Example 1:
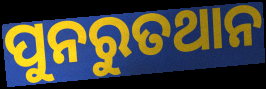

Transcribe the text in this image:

ପୁନରୁତଥାନ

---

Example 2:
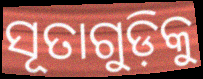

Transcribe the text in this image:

ସୂତାଗୁଡ଼ିକୁ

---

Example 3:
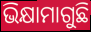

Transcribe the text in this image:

ଭିକ୍ଷାମାଗୁଛି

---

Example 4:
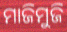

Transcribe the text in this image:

ମାଜିମୁଜି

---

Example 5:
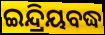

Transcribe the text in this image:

ଇନ୍ଦ୍ରିୟବଦ୍ଧ